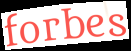
forbes